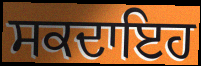
ਸਕਦਾਇਹ